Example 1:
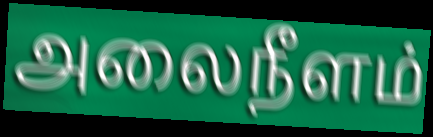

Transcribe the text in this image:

அலைநீளம்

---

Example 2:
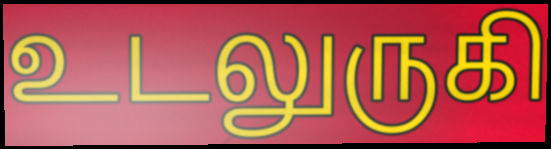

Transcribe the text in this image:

உடலுருகி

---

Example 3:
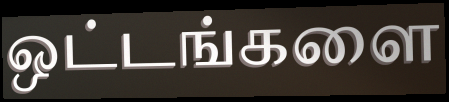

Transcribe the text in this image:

ஒட்டங்களை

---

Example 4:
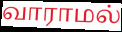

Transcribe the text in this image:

வாராமல்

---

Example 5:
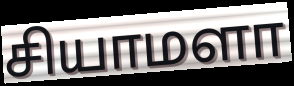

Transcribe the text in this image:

சியாமளா